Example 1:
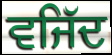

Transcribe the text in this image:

ਵਜਿੱਦ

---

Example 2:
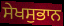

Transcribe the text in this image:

ਸੇਖਸੁਭਾਨ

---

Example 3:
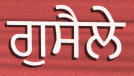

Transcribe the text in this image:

ਗੁਸੈਲੇ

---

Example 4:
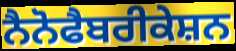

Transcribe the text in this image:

ਨੈਨੋਫੈਬਰੀਕੇਸ਼ਨ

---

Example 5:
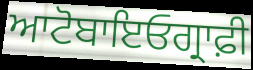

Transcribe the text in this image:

ਆਟੋਬਾਇਓਗ੍ਰਾਫ਼ੀ